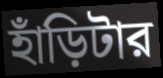
হাঁড়িটার